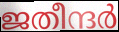
ജതീന്ദർ